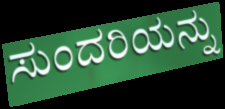
ಸುಂದರಿಯನ್ನು